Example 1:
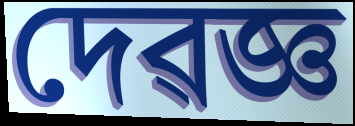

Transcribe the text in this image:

দেৱজ্ঞ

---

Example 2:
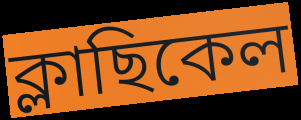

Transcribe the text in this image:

ক্লাছিকেল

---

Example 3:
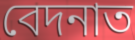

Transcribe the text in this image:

বেদনাত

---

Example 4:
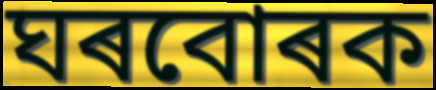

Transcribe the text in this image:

ঘৰবোৰক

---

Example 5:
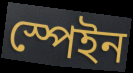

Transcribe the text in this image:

স্পেইন